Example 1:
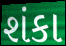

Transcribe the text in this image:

શંકા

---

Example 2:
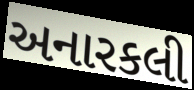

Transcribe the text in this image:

અનારકલી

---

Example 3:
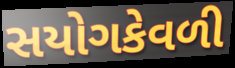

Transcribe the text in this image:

સયોગકેવળી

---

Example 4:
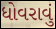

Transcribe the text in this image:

ધોવરાવું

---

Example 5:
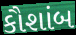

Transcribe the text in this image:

કૌશાંબ